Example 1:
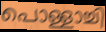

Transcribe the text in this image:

പൊള്ളാച്ചി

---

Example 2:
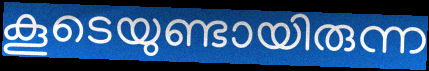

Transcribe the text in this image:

കൂടെയുണ്ടായിരുന്ന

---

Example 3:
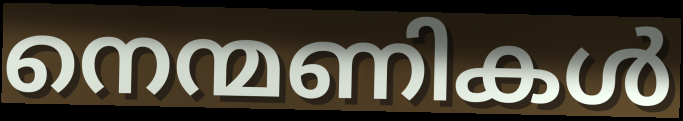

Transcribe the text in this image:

നെന്മണികൾ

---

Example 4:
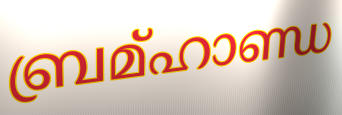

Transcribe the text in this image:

ബ്രമ്ഹാണ്ഡ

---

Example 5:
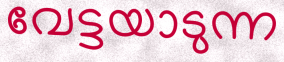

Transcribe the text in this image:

വേട്ടയാടുന്ന